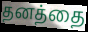
தனத்தை